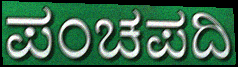
ಪಂಚಪದಿ